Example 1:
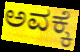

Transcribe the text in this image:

ಅವಕ್ಕೆ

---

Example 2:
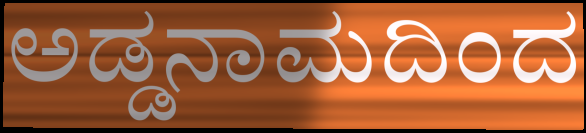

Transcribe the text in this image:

ಅಡ್ಡನಾಮದಿಂದ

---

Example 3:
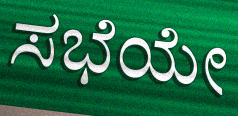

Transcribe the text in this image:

ಸಭೆಯೇ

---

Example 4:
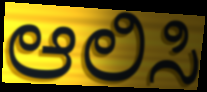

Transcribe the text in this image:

ಆಲಿಸಿ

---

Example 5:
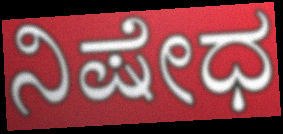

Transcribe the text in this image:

ನಿಷೇಧ